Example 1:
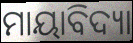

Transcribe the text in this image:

ମାୟାବିଦ୍ୟା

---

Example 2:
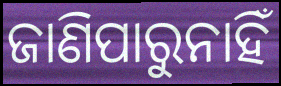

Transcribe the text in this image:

ଜାଣିପାରୁନାହିଁ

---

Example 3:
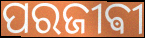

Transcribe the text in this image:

ପରଜୀଵୀ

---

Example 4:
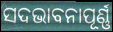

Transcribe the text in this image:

ସଦଭାବନାପୂର୍ଣ୍ଣ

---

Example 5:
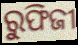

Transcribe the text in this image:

ରୁଫିଜୀ